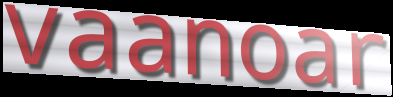
vaanoar